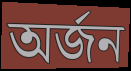
অর্জন